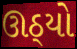
ઊઠ્યો